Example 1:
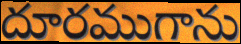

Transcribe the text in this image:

దూరముగాను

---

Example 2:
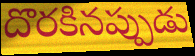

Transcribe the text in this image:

దొరకినప్పుడు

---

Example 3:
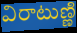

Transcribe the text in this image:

విరాటుణ్ణి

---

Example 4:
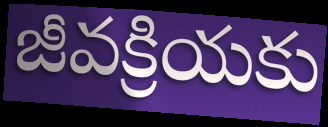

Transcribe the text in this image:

జీవక్రియకు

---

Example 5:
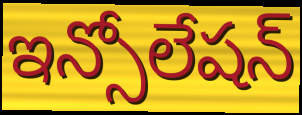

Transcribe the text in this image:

ఇన్సోలేషన్